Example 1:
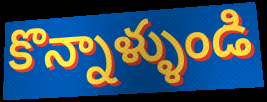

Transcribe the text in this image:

కొన్నాళ్ళుండి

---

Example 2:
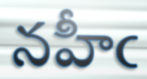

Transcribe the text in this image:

నహీఁ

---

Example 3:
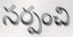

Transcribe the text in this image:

సర్పంచి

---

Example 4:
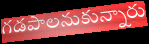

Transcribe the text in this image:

గడపాలనుకున్నారు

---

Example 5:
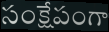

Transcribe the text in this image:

సంక్షేపంగా